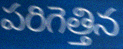
పరిగెత్తిన